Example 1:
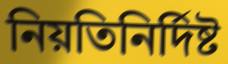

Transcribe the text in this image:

নিয়তিনির্দিষ্ট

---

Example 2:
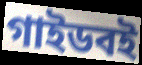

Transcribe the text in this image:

গাইডবই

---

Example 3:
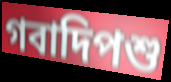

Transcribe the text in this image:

গবাদিপশু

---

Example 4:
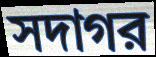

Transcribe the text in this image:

সদাগর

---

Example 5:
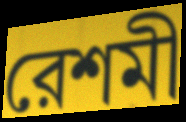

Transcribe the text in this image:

রেশমী